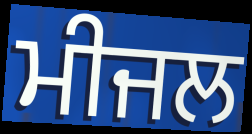
ਮੀਜਲ